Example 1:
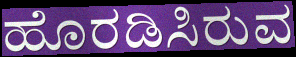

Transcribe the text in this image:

ಹೊರಡಿಸಿರುವ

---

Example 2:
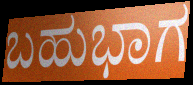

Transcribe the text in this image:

ಬಹುಭಾಗ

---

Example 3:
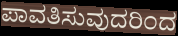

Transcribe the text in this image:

ಪಾವತಿಸುವುದರಿಂದ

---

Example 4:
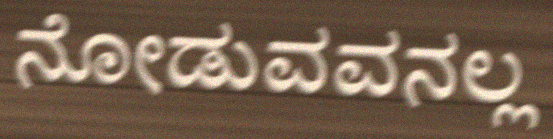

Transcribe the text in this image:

ನೋಡುವವನಲ್ಲ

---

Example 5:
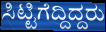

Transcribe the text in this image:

ಸಿಟ್ಟಿಗೆದ್ದಿದ್ದರು